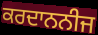
ਕਰਦਾਨਨੀਜ